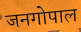
जनगोपाल